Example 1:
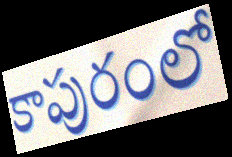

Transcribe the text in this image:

కాపురంలో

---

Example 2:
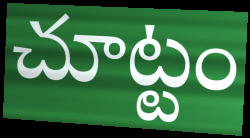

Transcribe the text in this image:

చూట్టం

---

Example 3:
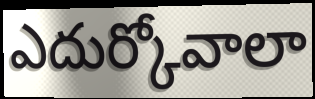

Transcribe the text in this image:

ఎదుర్కోవాలా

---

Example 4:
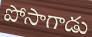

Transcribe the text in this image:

పోసాగాడు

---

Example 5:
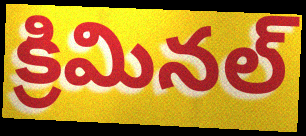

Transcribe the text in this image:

క్రిమినల్